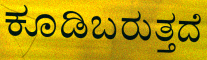
ಕೂಡಿಬರುತ್ತದೆ